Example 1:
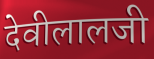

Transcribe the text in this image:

देवीलालजी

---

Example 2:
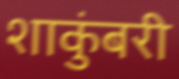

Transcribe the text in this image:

शाकुंबरी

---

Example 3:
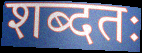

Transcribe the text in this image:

शब्दतः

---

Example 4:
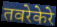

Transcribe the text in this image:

तवरेकेरे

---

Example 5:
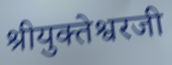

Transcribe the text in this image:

श्रीयुक्तेश्वरजी